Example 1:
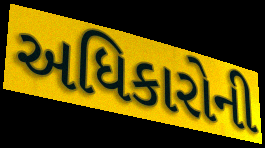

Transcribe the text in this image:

અધિકારોની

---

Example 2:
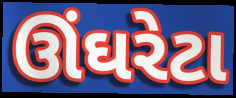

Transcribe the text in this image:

ઊંઘરેટા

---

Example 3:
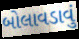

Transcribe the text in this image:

બોલાવડાવું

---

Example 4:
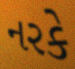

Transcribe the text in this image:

નરકે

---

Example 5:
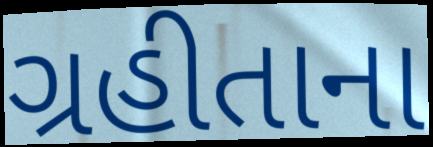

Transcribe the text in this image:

ગ્રહીતાના